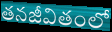
తనజీవితంలో